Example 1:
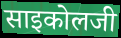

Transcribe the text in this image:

साइकोलजी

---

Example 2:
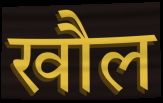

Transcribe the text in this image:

खौल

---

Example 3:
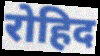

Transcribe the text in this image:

रोहिद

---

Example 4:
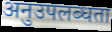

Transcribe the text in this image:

अनुउपलब्धता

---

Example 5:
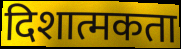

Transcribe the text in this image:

दिशात्मकता